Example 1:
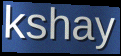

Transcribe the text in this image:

kshay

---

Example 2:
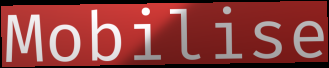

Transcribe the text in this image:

Mobilise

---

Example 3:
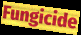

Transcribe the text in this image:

Fungicide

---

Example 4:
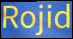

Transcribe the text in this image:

Rojid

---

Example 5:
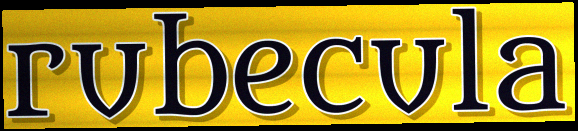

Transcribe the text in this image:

rubecula